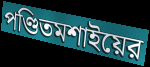
পণ্ডিতমশাইয়ের